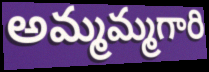
అమ్మమ్మగారి